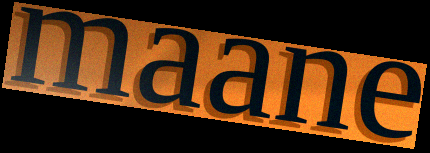
maane